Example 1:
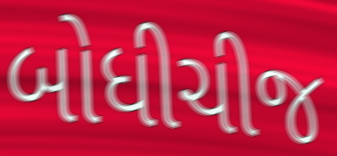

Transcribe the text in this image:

બોધીચીજ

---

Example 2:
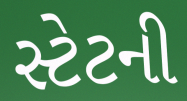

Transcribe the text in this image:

સ્ટેટની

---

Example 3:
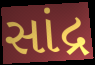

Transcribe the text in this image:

સાંદ્ર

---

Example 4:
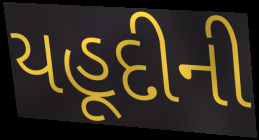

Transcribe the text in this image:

યહૂદીની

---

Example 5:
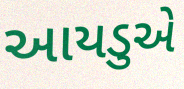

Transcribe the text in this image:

આયડુએ